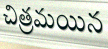
చిత్రమయిన